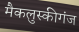
मैकलुस्कीगंज